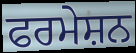
ਫਰਮੇਸ਼ਨ